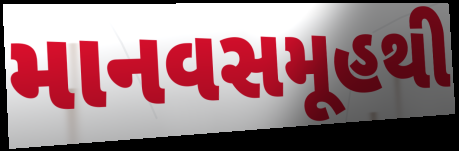
માનવસમૂહથી